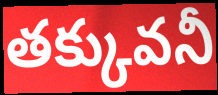
తక్కువనీ